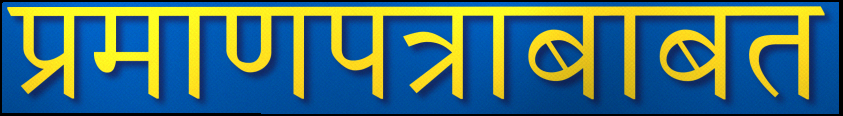
प्रमाणपत्राबाबत